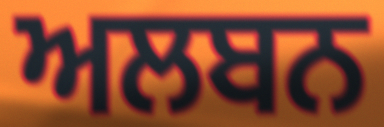
ਅਲਬਨ